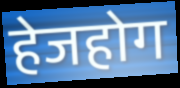
हेजहोग